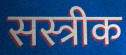
सस्त्रीक